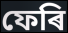
ফেৰি